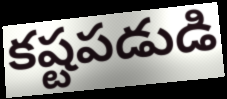
కష్టపడుడి